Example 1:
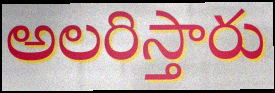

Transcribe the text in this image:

అలరిస్తారు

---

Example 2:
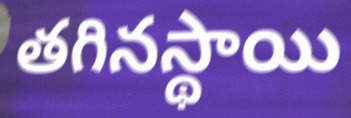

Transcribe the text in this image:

తగినస్థాయి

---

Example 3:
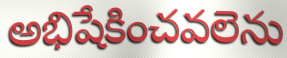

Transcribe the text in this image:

అభిషేకించవలెను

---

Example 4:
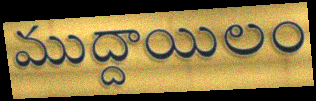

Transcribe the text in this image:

ముద్దాయిలం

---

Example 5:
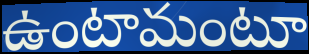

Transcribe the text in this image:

ఉంటామంటూ